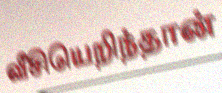
வீசியெறிந்தான்